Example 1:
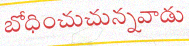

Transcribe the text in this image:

బోధించుచున్నవాడు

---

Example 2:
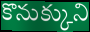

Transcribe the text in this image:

కొనుక్కుని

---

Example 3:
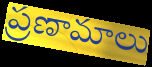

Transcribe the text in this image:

ప్రణామాలు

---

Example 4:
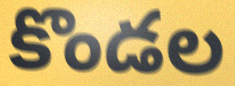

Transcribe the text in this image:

కొండల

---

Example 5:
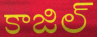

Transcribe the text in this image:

కాజిల్